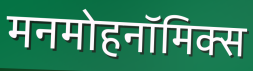
मनमोहनॉमिक्स